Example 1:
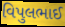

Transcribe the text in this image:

વિપુલભાઈ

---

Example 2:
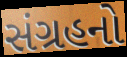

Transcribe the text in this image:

સંગ્રહનો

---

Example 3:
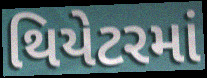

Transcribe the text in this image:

થિયેટરમાં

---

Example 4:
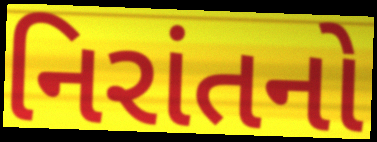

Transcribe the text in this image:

નિરાંતનો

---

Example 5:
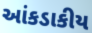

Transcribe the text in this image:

આંકડાકીય